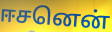
ஈசனென்